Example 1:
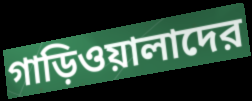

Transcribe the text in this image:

গাড়িওয়ালাদের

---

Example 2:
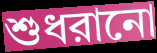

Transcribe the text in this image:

শুধরানো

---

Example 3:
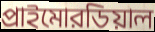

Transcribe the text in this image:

প্রাইমোরডিয়াল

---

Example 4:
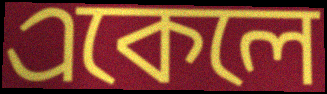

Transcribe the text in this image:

একেলে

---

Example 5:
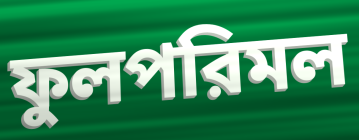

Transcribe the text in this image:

ফুলপরিমল